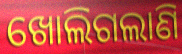
ଖୋଲିଗଲାଣି